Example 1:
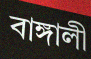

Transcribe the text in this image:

বাঙ্গালী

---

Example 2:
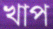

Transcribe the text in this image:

খাপ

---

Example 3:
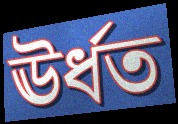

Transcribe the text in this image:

ঊৰ্ধত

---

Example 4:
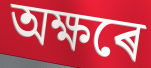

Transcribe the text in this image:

অক্ষৰে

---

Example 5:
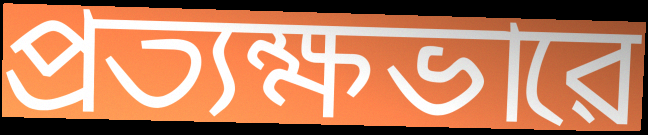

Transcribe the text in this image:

প্ৰত্যক্ষভাৱে